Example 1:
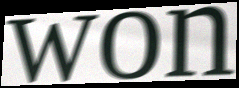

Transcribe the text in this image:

won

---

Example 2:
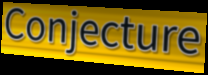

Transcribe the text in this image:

Conjecture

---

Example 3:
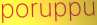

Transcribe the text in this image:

poruppu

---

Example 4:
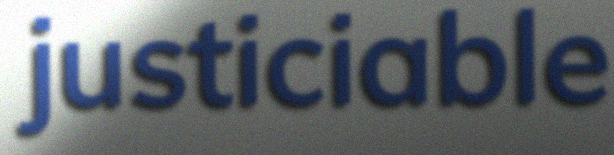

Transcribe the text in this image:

justiciable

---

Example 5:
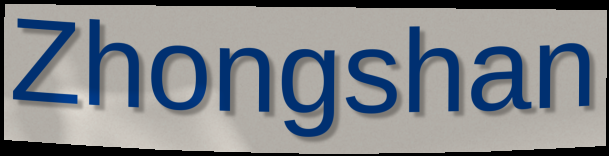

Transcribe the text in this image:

Zhongshan